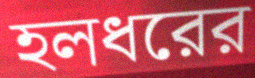
হলধরের